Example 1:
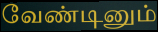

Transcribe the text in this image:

வேண்டினும்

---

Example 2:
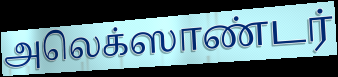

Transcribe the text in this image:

அலெக்ஸாண்டர்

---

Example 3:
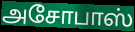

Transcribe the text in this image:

அசோபாஸ்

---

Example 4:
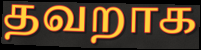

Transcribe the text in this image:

தவறாக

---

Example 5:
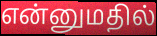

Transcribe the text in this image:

என்னுமதில்